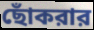
ছোঁকরার